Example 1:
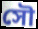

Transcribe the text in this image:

সৌ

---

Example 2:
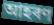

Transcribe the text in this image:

আহৰণ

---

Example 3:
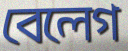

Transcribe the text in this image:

বেলেগ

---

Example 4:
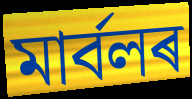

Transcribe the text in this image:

মাৰ্বলৰ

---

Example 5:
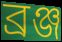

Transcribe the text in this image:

ব্ৰঞ্জ